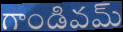
గాండివమ్